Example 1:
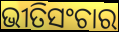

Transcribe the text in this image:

ଭୀତିସଂଚାର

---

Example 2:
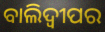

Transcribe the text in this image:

ବାଲିଦ୍ୱୀପର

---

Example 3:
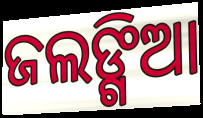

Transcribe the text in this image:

ଜଲଙ୍ଗିଆ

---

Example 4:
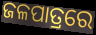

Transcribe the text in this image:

ଜଳପାତ୍ରରେ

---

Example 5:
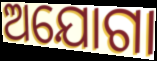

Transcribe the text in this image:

ଅଯୋଗା